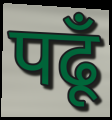
पढूँ